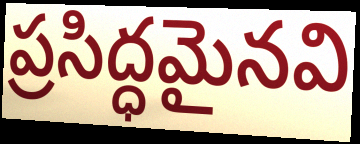
ప్రసిద్ధమైనవి